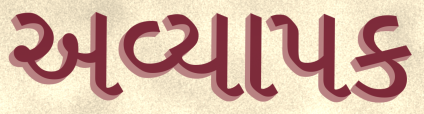
અવ્યાપક